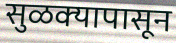
सुळक्यापासून